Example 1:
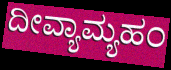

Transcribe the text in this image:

ದೀವ್ಯಾಮ್ಯಹಂ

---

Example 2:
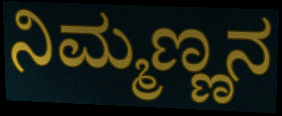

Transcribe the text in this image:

ನಿಮ್ಮಣ್ಣನ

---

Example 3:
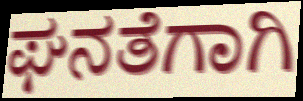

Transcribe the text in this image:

ಘನತೆಗಾಗಿ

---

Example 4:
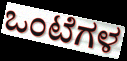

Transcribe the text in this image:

ಒಂಟೆಗಳ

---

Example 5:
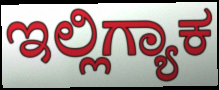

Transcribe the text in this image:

ಇಲ್ಲಿಗ್ಯಾಕ